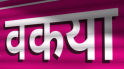
वकया